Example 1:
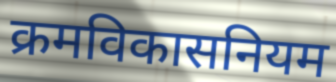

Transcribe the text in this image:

क्रमविकासनियम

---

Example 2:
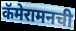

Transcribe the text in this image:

कॅमेरामनची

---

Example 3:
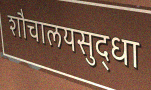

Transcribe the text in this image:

शौचालयसुद्धा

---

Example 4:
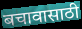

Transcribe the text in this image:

बचावासाठी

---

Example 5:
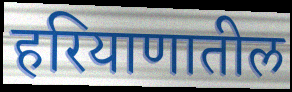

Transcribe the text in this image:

हरियाणातील